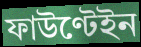
ফাউণ্টেইন